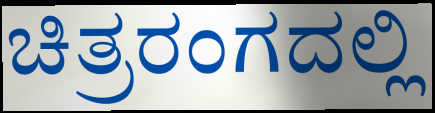
ಚಿತ್ರರಂಗದಲ್ಲಿ